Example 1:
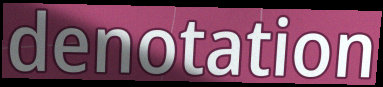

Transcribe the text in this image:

denotation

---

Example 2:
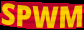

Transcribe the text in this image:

SPWM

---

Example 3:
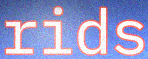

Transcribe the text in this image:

rids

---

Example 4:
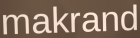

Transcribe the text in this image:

makrand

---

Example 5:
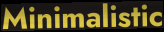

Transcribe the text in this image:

Minimalistic